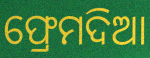
ଫ୍ରେମଦିଆ